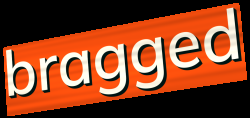
bragged